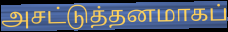
அசட்டுத்தனமாகப்